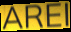
AREI